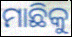
ମାଛିକୁ